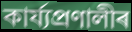
কাৰ্য্যপ্ৰণালীৰ